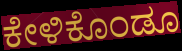
ಕೇಳಿಕೊಂಡೂ